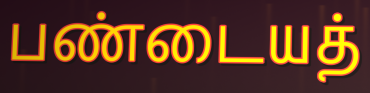
பண்டையத்